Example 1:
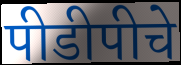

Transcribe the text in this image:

पीडीपीचे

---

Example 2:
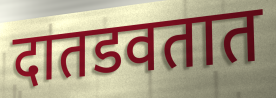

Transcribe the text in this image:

दातडवतात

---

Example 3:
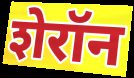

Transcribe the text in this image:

शेरॉन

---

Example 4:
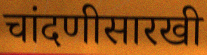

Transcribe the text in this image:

चांदणीसारखी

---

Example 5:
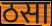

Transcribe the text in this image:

ठसा